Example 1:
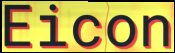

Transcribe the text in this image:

Eicon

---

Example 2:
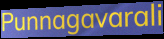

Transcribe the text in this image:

Punnagavarali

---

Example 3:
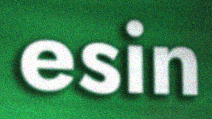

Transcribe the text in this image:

esin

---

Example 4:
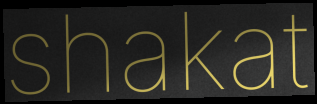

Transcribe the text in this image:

shakat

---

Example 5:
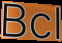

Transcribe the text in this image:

Bcl